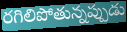
రగిలిపోతున్నప్పుడు